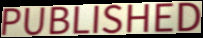
PUBLISHED